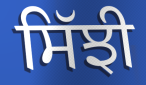
ਸਿੱਝੀ